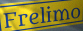
Frelimo